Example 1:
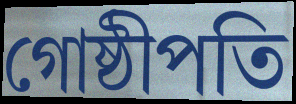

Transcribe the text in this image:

গোষ্ঠীপতি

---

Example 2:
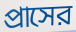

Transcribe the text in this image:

প্রাসের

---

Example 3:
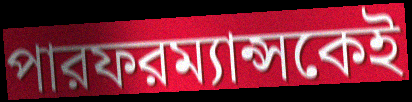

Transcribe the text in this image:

পারফরম্যান্সকেই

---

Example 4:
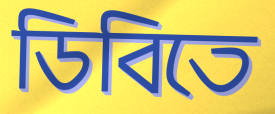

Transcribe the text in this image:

ডিবিতে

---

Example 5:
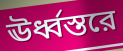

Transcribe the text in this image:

ঊর্ধ্বস্তরে